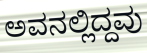
ಅವನಲ್ಲಿದ್ದವು